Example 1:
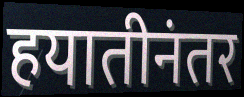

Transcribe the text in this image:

हयातीनंतर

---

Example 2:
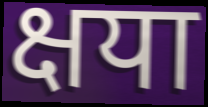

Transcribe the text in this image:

क्षया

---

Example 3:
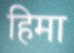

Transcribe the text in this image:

हिमा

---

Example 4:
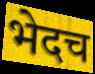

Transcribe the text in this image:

भेदच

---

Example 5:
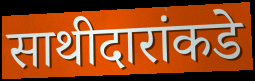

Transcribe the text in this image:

साथीदारांकडे